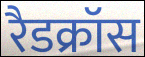
रैडक्रॉस